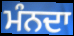
ਮੰਨਦਾ